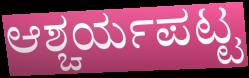
ಆಶ್ಚರ್ಯಪಟ್ಟ